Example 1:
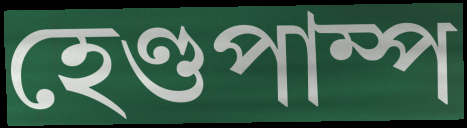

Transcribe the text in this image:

হেণ্ডপাম্প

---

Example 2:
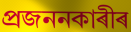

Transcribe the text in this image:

প্ৰজননকাৰীৰ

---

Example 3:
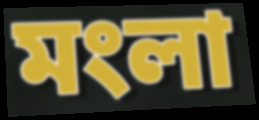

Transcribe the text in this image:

মংলা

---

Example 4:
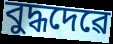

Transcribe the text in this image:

বুদ্ধদেৱে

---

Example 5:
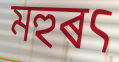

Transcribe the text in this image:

মহুৰৎ